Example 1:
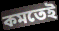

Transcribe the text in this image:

কমতেই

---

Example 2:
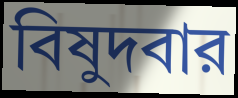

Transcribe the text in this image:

বিষুদবার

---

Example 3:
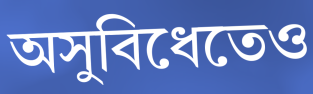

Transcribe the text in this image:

অসুবিধেতেও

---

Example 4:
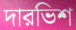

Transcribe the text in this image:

দারভিশ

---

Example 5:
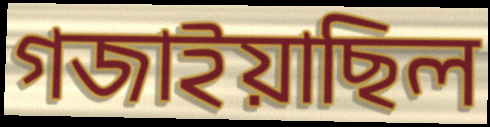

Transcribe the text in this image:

গজাইয়াছিল